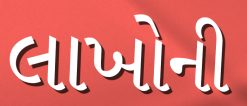
લાખોની